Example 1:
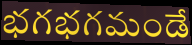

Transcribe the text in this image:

భగభగమండే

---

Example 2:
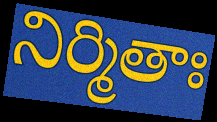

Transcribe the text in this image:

నిర్మితాః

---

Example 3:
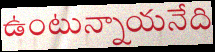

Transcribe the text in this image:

ఉంటున్నాయనేది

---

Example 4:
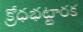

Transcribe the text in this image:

క్రోధభట్టారక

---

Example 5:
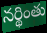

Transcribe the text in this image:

నర్థింతు